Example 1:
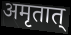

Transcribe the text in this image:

अमृतात्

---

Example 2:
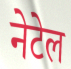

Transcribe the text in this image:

नेटेल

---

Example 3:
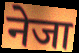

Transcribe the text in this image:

नेजा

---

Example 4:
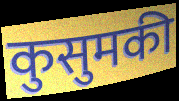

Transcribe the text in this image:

कुसुमकी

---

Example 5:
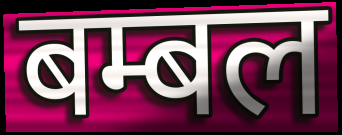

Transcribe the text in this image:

बम्बल